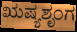
ಋಷ್ಯಶೃಂಗ